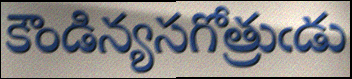
కౌండిన్యసగోత్రుఁడు